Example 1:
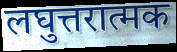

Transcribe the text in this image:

लघुत्तरात्मक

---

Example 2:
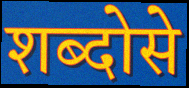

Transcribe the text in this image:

शब्दोसे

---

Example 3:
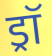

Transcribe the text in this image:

ड्रॉ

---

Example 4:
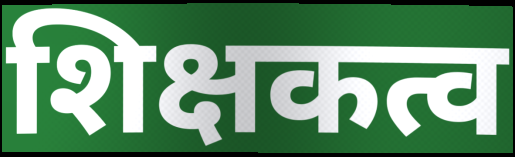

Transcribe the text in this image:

शिक्षकत्व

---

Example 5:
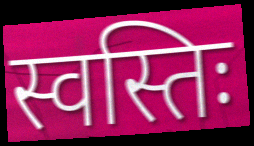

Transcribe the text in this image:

स्वस्तिः